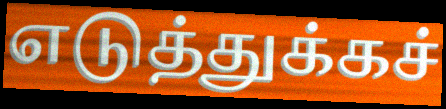
எடுத்துக்கச்